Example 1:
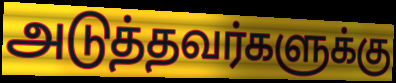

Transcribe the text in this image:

அடுத்தவர்களுக்கு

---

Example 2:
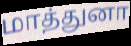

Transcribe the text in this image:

மாத்துனா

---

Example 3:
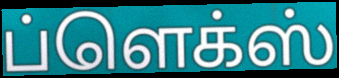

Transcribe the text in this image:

ப்ளெக்ஸ்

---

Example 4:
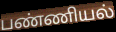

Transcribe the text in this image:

பண்ணியல்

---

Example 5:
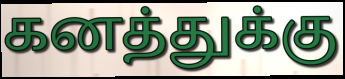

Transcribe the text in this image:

கனத்துக்கு